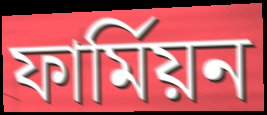
ফাৰ্মিয়ন